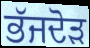
ਭੱਜਦੋੜ